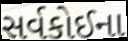
સર્વકોઈના